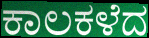
ಕಾಲಕಳೆದ